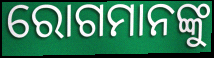
ରୋଗମାନଙ୍କୁ